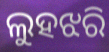
ଲୁହଝରି